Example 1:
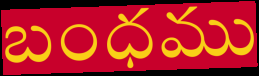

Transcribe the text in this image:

బంధము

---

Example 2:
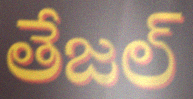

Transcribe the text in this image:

తేజల్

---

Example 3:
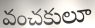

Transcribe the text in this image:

వంచకులూ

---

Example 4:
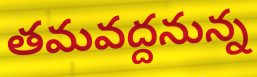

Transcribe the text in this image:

తమవద్దనున్న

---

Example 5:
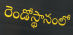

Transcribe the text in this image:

రెండోస్థానంలో